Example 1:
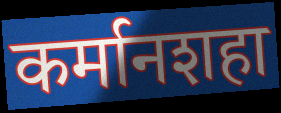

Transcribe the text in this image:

कर्मानशहा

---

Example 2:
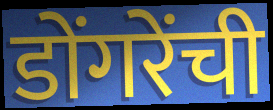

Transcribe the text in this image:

डोंगरेंची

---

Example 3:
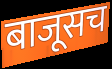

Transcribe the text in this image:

बाजूसच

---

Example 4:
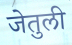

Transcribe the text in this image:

जेतुली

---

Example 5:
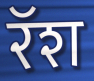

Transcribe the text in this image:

रॅश